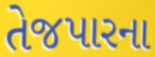
તેજપારના